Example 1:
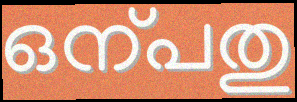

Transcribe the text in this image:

ഒന്പതു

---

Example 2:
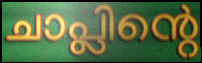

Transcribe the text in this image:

ചാപ്ലിന്റെ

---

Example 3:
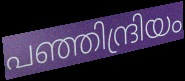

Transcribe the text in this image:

പഞ്ഞിന്ദ്രിയം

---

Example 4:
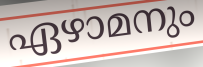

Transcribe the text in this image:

ഏഴാമനും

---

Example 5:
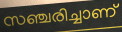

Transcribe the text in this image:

സഞ്ചരിച്ചാണ്